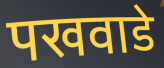
पखवाडे